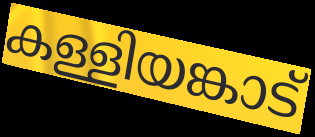
കള്ളിയങ്കാട്